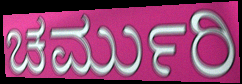
ಚರ್ಮುರಿ